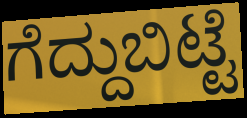
ಗೆದ್ದುಬಿಟ್ಟೆ